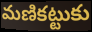
మణికట్టుకు